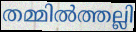
തമ്മിൽത്തല്ലി